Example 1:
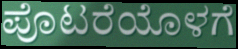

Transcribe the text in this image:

ಪೊಟರೆಯೊಳಗೆ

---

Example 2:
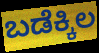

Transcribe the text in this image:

ಬಡೆಕ್ಕಿಲ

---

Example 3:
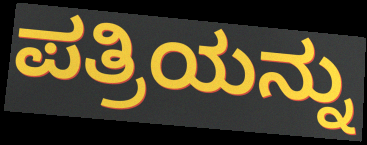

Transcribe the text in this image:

ಪತ್ರಿಯನ್ನು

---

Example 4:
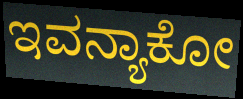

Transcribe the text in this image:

ಇವನ್ಯಾಕೋ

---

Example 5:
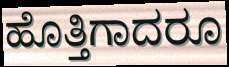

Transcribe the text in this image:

ಹೊತ್ತಿಗಾದರೂ